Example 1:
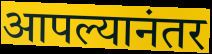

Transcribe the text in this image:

आपल्यानंतर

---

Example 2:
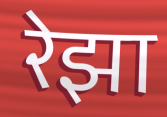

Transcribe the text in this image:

रेझा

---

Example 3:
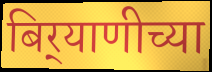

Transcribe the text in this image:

बिर्याणीच्या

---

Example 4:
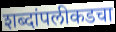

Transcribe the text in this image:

शब्दांपलीकडचा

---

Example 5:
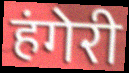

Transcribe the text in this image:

हंगेरी